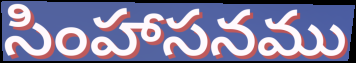
సింహాసనము